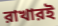
রাখারই